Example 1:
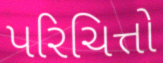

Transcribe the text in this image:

પરિચિત્તો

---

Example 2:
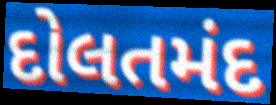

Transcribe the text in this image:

દોલતમંદ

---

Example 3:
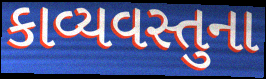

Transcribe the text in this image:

કાવ્યવસ્તુના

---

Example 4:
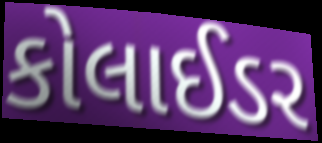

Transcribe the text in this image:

કોલાઈડર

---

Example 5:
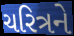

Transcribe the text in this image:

ચરિત્રને